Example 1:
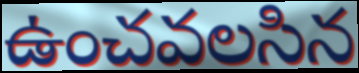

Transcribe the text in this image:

ఉంచవలసిన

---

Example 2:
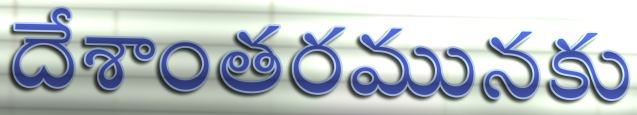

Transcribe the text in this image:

దేశాంతరమునకు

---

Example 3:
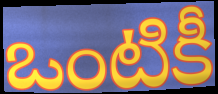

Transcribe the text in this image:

ఒంటికీ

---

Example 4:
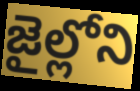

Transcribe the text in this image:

జైల్లోని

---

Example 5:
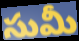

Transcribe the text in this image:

సుమీ